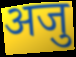
अजु